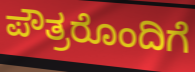
ಪೌತ್ರರೊಂದಿಗೆ